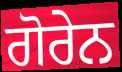
ਗੋਰੇਨ